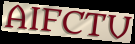
AIFCTU